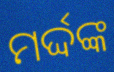
ମର୍ଦ୍ଦଙ୍କ